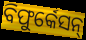
ବିଫୁର୍କେସନ୍